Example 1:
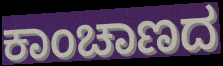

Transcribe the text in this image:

ಕಾಂಚಾಣದ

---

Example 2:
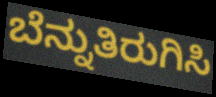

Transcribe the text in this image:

ಬೆನ್ನುತಿರುಗಿಸಿ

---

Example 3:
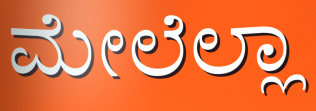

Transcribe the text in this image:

ಮೇಲೆಲ್ಲಾ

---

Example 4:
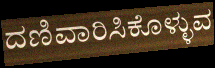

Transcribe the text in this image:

ದಣಿವಾರಿಸಿಕೊಳ್ಳುವ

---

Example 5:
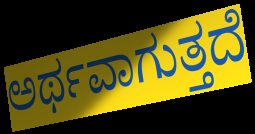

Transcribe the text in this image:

ಅರ್ಥವಾಗುತ್ತದೆ